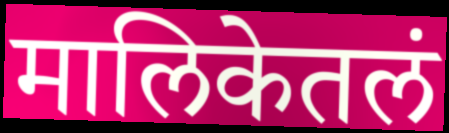
मालिकेतलं